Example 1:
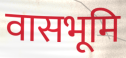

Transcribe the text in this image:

वासभूमि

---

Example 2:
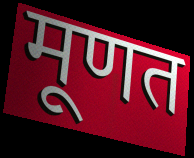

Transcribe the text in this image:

मूणत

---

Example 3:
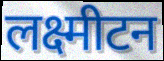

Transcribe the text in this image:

लक्ष्मीटन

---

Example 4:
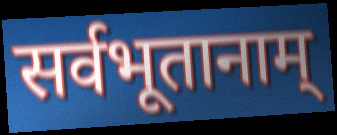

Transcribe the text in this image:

सर्वभूतानाम्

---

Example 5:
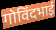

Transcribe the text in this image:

गोविंदभाई